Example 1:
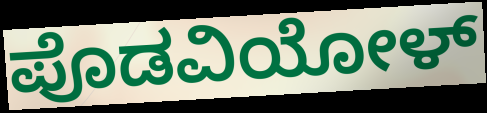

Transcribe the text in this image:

ಪೊಡವಿಯೋಳ್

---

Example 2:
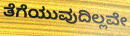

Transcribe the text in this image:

ತೆಗೆಯುವುದಿಲ್ಲವೇ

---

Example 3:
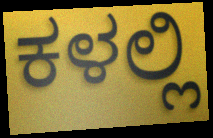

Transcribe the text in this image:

ಕಳಲ್ಲಿ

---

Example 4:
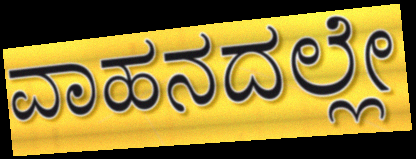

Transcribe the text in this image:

ವಾಹನದಲ್ಲೇ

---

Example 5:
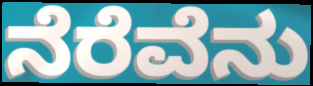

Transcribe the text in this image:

ನೆರೆವೆನು